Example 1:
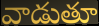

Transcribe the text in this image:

వాడుతూ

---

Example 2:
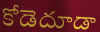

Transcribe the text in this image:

కోడెదూడా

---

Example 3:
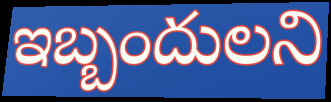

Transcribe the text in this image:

ఇబ్బందులని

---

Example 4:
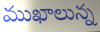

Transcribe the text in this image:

ముఖాలున్న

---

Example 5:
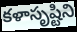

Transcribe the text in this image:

కళాసృష్టిని